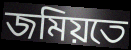
জমিয়তে